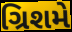
ગ્રિશમે